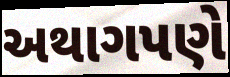
અથાગપણે